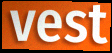
vest